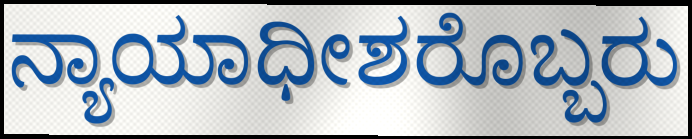
ನ್ಯಾಯಾಧೀಶರೊಬ್ಬರು